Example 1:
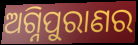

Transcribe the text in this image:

ଅଗ୍ନିପୁରାଣର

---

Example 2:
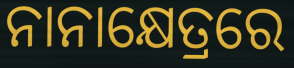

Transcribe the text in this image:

ନାନାକ୍ଷେତ୍ରରେ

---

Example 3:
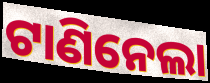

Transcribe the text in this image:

ଟାଣିନେଲା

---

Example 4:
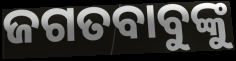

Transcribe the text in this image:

ଜଗତବାବୁଙ୍କୁ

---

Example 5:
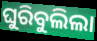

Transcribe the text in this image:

ଘୁରିବୁଲିଲା